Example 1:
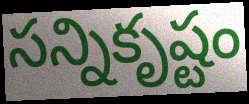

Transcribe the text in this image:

సన్నికృష్టం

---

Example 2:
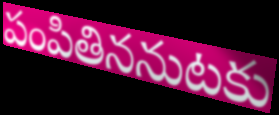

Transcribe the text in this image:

పంపితిననుటకు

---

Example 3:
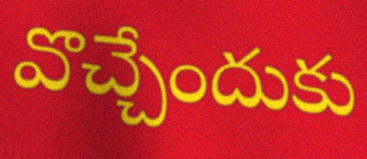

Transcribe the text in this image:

వొచ్చేందుకు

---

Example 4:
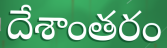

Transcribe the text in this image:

దేశాంతరం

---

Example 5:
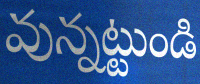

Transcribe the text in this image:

వున్నట్టుండి